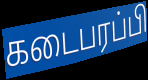
கடைபரப்பி